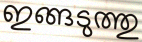
ഇങ്ങടുത്തു